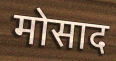
मोसाद